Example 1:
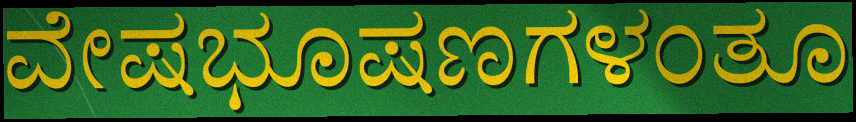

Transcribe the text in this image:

ವೇಷಭೂಷಣಗಳಂತೂ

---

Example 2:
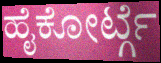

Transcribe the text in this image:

ಹೈಕೋರ್ಟ್ಗೆ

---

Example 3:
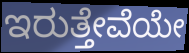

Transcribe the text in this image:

ಇರುತ್ತೇವೆಯೇ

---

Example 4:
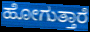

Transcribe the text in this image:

ಹೋಗುತ್ತಾರೆ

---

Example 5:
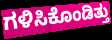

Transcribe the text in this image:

ಗಳಿಸಿಕೊಂಡಿತ್ತು